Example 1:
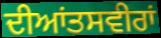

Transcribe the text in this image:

ਦੀਆਂਤਸਵੀਰਾਂ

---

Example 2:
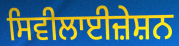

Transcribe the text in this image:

ਸਿਵੀਲਾਈਜ਼ੇਸ਼ਨ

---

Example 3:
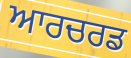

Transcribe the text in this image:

ਆਰਚਰਡ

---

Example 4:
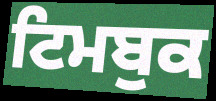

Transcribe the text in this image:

ਟਿਮਬੁਕ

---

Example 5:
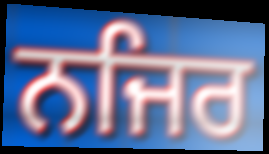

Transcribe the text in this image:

ਨਜਿਰ